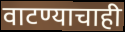
वाटण्याचाही